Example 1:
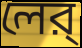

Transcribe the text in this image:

লের্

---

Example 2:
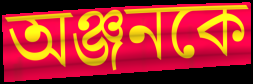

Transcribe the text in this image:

অঞ্জনকে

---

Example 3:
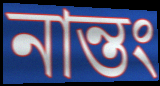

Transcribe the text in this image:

নান্তং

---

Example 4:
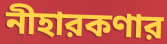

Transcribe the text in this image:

নীহারকণার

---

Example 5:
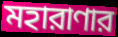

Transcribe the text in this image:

মহারাণার